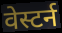
वेस्टर्न